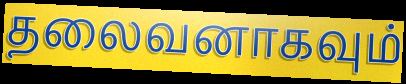
தலைவனாகவும்